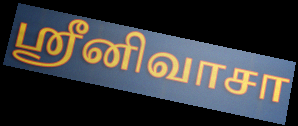
ஸ்ரீனிவாசா